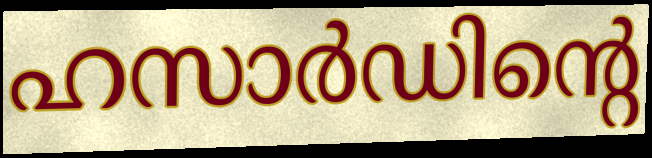
ഹസാർഡിന്റെ